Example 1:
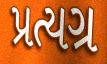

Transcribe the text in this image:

પ્રત્યગ્ર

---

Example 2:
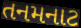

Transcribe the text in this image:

તનમનાટ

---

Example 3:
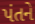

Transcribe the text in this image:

પંતને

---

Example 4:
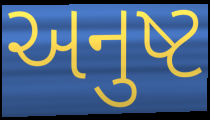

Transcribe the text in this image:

અનુષ્ટ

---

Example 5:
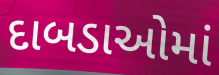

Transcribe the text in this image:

દાબડાઓમાં